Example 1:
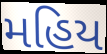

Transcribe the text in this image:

મહિય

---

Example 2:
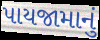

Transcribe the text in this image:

પાયજામાનું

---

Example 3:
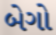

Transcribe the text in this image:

બેગો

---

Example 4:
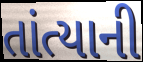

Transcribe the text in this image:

તાંત્યાની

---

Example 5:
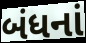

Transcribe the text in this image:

બંધનાં